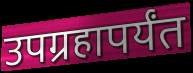
उपग्रहापर्यंत